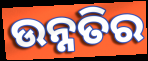
ଉନ୍ନତିର